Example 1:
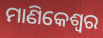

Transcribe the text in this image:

ମାଣିକେଶ୍ଵର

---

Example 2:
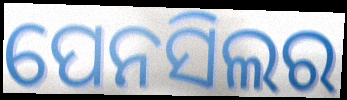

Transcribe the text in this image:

ପେନସିଲର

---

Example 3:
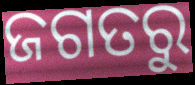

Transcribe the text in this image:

ଜଗତରୁ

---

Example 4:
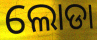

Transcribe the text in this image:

ଲୋଡା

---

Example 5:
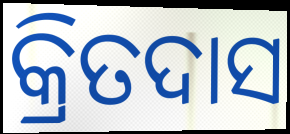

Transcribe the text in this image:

କ୍ରିତଦାସ